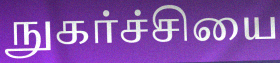
நுகர்ச்சியை